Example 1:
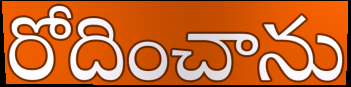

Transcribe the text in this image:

రోదించాను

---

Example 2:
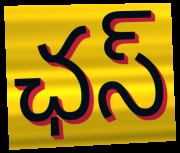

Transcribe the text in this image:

ఛస్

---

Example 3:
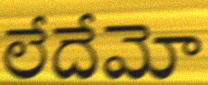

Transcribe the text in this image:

లేదేమో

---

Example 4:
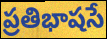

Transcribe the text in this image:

ప్రతిభాషసే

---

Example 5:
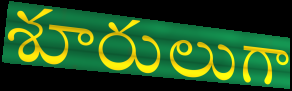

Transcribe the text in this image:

శూరులుగా